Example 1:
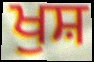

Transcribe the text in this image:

ਖੁਸ਼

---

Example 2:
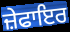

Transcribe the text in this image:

ਜ਼ੇਫਾਇਰ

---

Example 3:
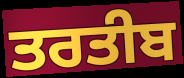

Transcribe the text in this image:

ਤਰਤੀਬ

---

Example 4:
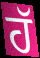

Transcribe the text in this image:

ਹੱ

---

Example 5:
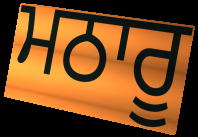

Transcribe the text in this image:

ਮਠਾਰੂ